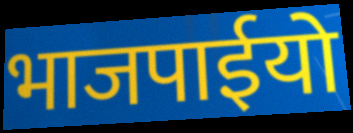
भाजपाईयो